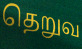
தெறுவ